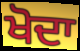
ਖੋਦਾ